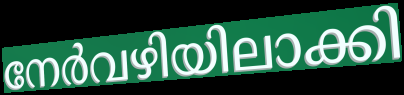
നേർവഴിയിലാക്കി